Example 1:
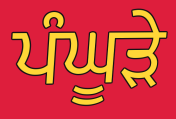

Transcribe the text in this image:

ਪੰਘੂੜੇ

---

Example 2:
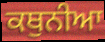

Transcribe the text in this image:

ਕਥੁਨੀਆ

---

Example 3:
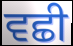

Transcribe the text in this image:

ਵਛੀ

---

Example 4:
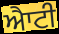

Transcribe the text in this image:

ਐਾਟੀ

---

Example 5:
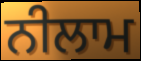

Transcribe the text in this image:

ਨੀਲਾਮ